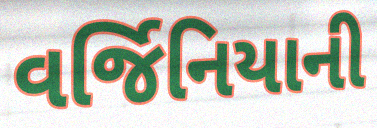
વર્જિનિયાની